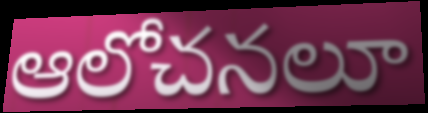
ఆలోచనలూ